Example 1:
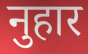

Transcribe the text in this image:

नुहार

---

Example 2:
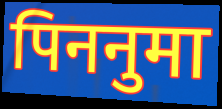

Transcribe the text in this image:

पिननुमा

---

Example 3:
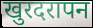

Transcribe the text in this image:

खुरदरापन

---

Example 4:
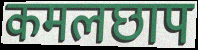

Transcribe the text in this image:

कमलछाप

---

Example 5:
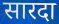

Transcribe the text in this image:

सारदा